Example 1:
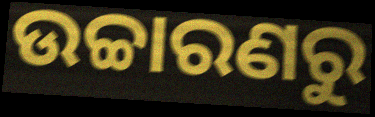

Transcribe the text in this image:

ଉଚ୍ଚାରଣରୁ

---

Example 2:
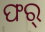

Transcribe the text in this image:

ଫର୍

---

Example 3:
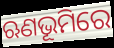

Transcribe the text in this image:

ଋଣଭୂମିରେ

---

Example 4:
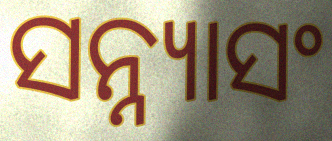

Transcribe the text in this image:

ସନ୍ନ୍ୟାସଂ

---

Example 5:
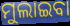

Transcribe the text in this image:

ମୁଲାଇବା